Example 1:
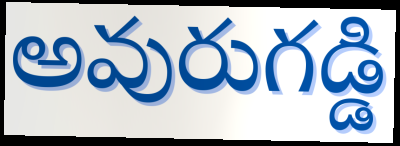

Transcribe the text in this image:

అవురుగడ్డి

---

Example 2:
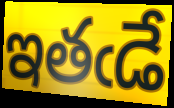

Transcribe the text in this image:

ఇతఁడే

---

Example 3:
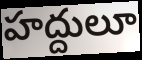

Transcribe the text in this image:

హద్దులూ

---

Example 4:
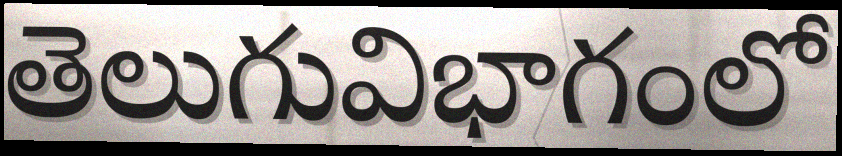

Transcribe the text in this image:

తెలుగువిభాగంలో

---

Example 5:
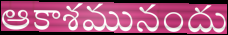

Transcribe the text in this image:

ఆకాశమునందు